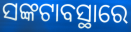
ସଙ୍କଟାବସ୍ଥାରେ